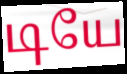
டியே